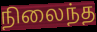
நிலைந்த